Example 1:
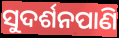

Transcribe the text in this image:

ସୁଦର୍ଶନପାଣି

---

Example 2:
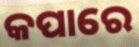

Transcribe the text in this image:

କପାରେ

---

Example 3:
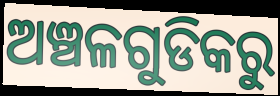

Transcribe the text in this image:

ଅଞ୍ଚଳଗୁଡିକରୁ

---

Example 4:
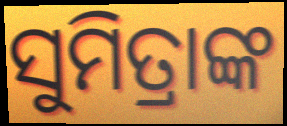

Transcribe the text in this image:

ସୁମିତ୍ରାଙ୍କ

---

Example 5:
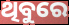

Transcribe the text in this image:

ଥିବୁରେ